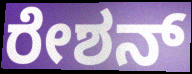
ರೇಶನ್